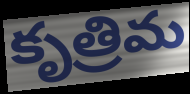
కృత్రిమ